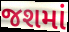
જશમાં